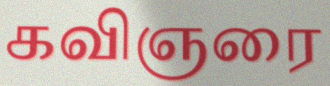
கவிஞரை